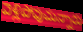
వెళ్లిపోవుచున్నారు